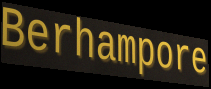
Berhampore